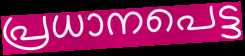
പ്രധാനപെട്ട